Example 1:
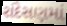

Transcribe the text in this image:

રાંદેસણમાં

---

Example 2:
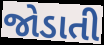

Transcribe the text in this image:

જોડાતી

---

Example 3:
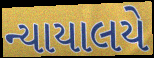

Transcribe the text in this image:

ન્યાયાલયે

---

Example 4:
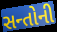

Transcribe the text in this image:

સન્તોની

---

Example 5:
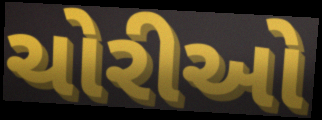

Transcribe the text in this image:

ચોરીઓ